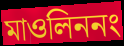
মাওলিননং